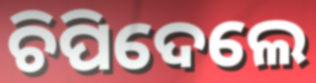
ଚିପିଦେଲେ